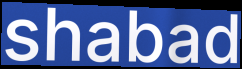
shabad